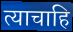
त्याचाहि